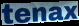
tenax